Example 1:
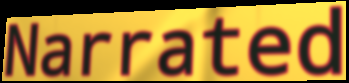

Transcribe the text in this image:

Narrated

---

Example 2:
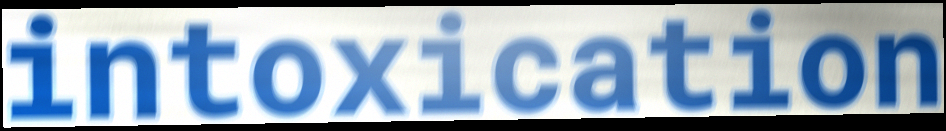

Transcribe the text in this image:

intoxication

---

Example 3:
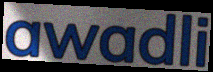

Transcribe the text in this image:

awadli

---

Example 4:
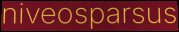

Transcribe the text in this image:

niveosparsus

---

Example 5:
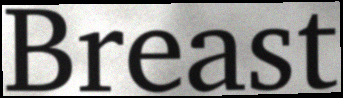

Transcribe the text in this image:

Breast